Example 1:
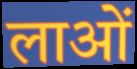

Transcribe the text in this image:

लाओं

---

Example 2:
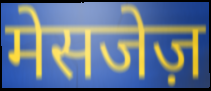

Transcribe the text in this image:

मेसजेज़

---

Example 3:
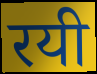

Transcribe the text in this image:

रयी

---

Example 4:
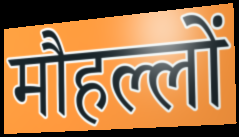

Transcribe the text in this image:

मौहल्लों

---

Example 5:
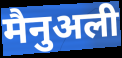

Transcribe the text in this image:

मैनुअली